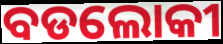
ବଡଲୋକୀ